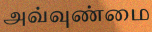
அவ்வுண்மை